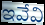
ఇవేవి